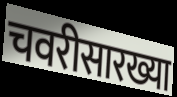
चवरीसारख्या